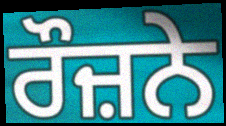
ਰੌਜ਼ਨੇ